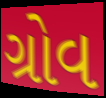
ગ્રોવ